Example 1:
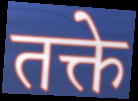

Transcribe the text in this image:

तक्ते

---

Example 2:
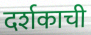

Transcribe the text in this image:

दर्शकाची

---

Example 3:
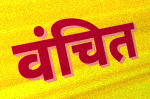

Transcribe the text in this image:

वंचित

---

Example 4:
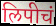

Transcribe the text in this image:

लिपीचं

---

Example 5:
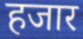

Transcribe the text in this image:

हजार